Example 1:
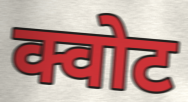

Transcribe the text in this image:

क्वोट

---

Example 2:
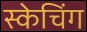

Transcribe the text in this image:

स्केचिंग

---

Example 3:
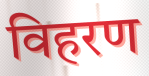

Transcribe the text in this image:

विहरण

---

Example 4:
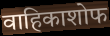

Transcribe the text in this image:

वाहिकाशोफ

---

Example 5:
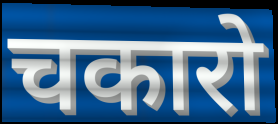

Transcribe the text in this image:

चकारो